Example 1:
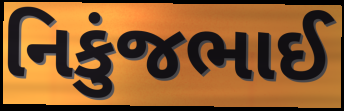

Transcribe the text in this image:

નિકુંજભાઈ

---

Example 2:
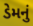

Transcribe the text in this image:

ડેમનું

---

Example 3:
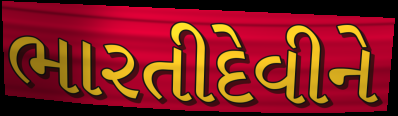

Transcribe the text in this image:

ભારતીદેવીને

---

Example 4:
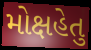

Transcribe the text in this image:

મોક્ષહેતુ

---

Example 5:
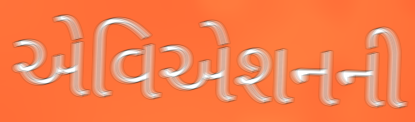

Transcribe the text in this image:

એવિએશનની